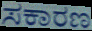
ಸಕಾರಣ